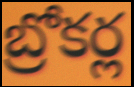
బ్రోకర్ల